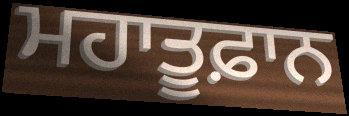
ਮਹਾਤੂਫ਼ਾਨ